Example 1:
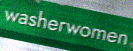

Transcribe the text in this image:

washerwomen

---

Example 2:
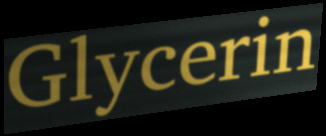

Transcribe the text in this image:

Glycerin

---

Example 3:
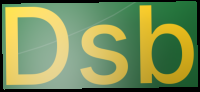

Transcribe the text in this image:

Dsb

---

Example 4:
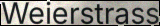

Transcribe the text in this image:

Weierstrass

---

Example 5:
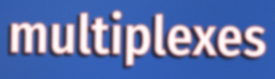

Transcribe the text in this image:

multiplexes